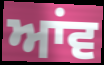
ਆਂਵ